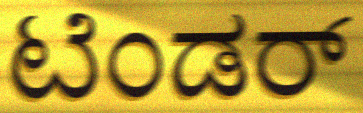
ಟೆಂಡರ್